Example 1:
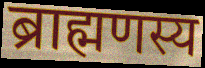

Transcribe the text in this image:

ब्राह्मणस्य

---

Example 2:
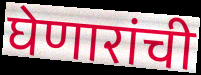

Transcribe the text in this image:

घेणारांची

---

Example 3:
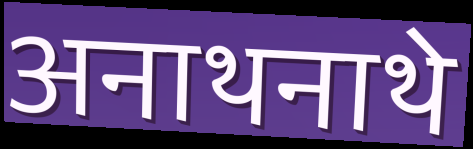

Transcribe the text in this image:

अनाथनाथे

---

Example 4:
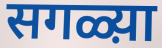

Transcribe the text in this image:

सगळ्य़ा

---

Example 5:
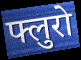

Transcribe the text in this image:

फ्लुरो